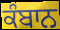
ਕੰਬਾਨ